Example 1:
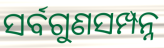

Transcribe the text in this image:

ସର୍ବଗୁଣସମ୍ପନ୍ନ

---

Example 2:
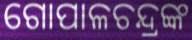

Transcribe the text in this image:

ଗୋପାଳଚନ୍ଦ୍ରଙ୍କ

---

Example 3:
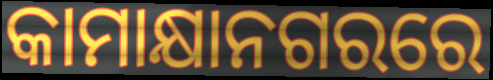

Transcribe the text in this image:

କାମାକ୍ଷାନଗରରେ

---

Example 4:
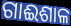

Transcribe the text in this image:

ଗାଈଶାଳ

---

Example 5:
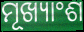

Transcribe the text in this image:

ମୂଖ୍ୟାଂଶ